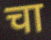
चा